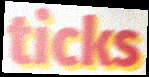
ticks